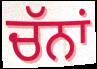
ਚੱਨਾਂ